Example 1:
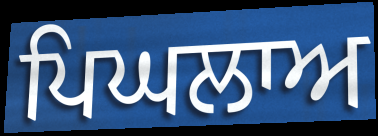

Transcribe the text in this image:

ਪਿਘਲਾਅ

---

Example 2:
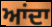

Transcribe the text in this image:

ਆਂਦਾ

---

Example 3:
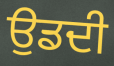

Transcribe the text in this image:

ਉਡਦੀ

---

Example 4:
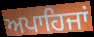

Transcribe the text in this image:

ਅਪਾਹਿਜਾਂ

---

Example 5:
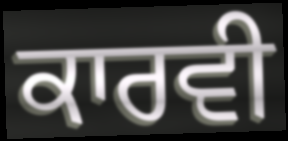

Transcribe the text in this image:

ਕਾਰਵੀ